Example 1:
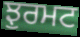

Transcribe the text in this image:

ਝੁਰਮਟ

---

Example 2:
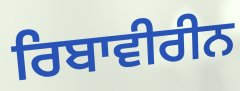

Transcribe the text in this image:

ਰਿਬਾਵੀਰੀਨ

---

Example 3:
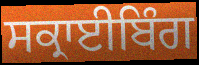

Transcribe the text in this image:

ਸਕ੍ਰਾਈਬਿੰਗ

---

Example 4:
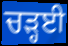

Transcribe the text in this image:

ਚੜ੍ਹਈ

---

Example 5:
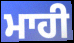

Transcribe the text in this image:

ਮਾਹੀ